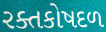
રક્તકોષદળ